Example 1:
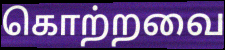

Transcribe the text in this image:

கொற்றவை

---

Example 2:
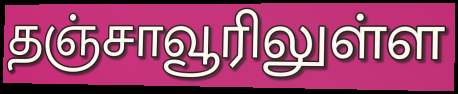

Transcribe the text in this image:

தஞ்சாவூரிலுள்ள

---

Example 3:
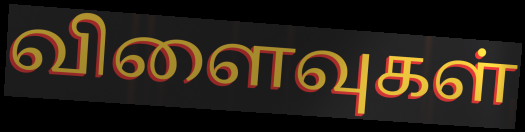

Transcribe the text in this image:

விளைவுகள்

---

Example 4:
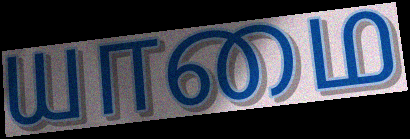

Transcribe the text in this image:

யாமை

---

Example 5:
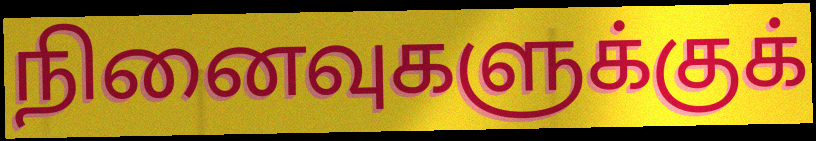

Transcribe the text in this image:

நினைவுகளுக்குக்